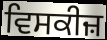
ਵਿਸਕੀਜ਼